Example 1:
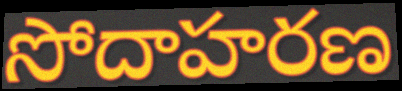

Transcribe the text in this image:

సోదాహరణ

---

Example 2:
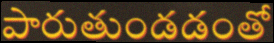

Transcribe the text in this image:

పారుతుండడంతో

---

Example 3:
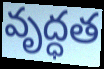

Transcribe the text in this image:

వృద్ధత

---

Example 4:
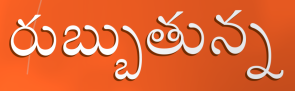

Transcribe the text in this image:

రుబ్బుతున్న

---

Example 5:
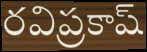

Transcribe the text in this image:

రవిప్రకాష్